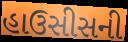
હાઉસીસની